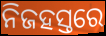
ନିଜହସ୍ତରେ